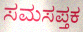
ಸಮಸಪ್ತಕ